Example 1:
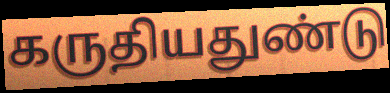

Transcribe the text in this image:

கருதியதுண்டு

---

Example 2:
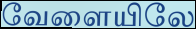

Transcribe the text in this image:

வேளையிலே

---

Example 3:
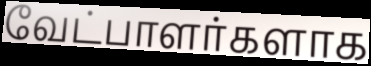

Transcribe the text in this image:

வேட்பாளர்களாக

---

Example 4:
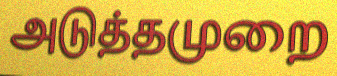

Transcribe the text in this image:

அடுத்தமுறை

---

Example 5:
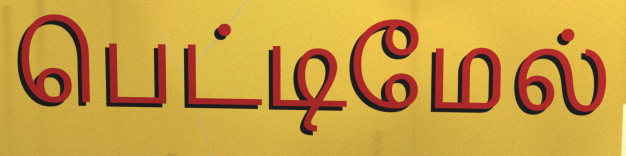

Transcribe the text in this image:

பெட்டிமேல்